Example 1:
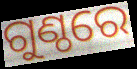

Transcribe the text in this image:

ଗୁଣ୍ଠରେ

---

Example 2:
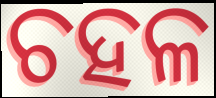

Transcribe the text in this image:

ଚହଳ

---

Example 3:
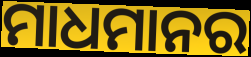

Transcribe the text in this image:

ମାଧମାନର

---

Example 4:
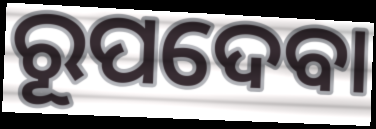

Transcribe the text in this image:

ରୂପଦେବା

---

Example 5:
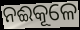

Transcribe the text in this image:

ନଈକୂଳେ